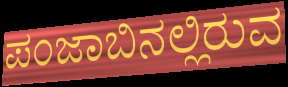
ಪಂಜಾಬಿನಲ್ಲಿರುವ